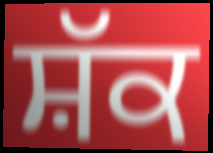
ਸ਼ੱਕ